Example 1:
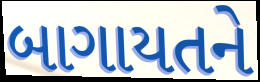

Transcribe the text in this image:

બાગાયતને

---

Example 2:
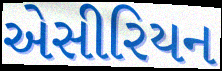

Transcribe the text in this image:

એસીરિયન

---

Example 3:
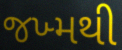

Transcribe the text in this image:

જખ્મથી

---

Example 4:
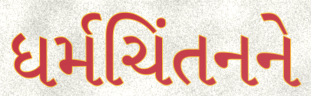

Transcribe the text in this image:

ધર્મચિંતનને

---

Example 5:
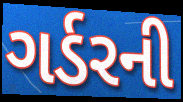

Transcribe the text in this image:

ગર્ડરની